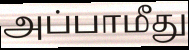
அப்பாமீது